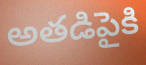
అతడిపైకి